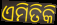
ଏମିତିକି